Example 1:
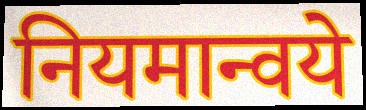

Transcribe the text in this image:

नियमान्वये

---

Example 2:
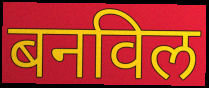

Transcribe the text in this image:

बनविल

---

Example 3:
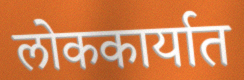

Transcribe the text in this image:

लोककार्यात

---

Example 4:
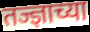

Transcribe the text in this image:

तज्ज्ञाच्या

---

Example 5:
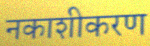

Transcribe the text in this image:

नकाशीकरण